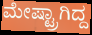
ಮೇಷ್ಟ್ರಾಗಿದ್ದ